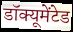
डॉक्यूमेंटेड